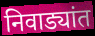
निवाड्यांत